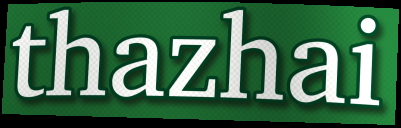
thazhai